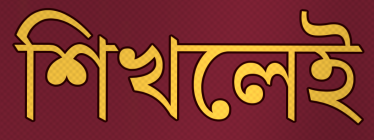
শিখলেই